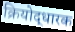
क्रियोद्धारक